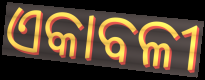
ଏକାବଳୀ